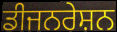
ਡੀਜਨਰੇਸ਼ਨ